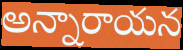
అన్నారాయన